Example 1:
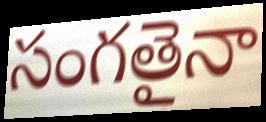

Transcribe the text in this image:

సంగతైనా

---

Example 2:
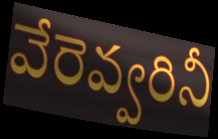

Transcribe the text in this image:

వేరెవ్వరినీ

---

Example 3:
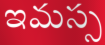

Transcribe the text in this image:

ఇమస్స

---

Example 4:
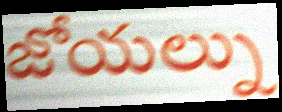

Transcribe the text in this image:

జోయల్ను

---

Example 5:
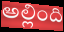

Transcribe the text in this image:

అల్లింది